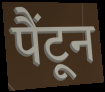
पैंटून